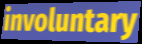
involuntary